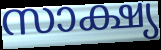
സാക്ഷ്യ